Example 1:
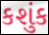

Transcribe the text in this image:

કશુંક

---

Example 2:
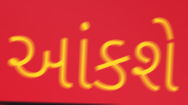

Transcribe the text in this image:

આંકશે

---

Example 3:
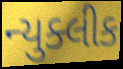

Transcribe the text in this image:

ન્યુક્લીક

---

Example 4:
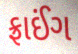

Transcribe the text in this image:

ફ્રાઈંગ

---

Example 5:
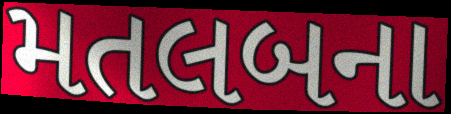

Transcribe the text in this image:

મતલબના